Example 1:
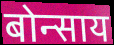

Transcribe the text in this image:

बोन्साय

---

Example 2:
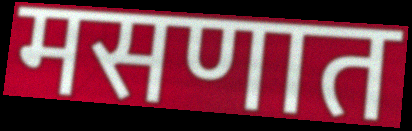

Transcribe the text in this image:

मसणात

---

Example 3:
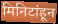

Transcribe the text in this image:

मिनिटांहून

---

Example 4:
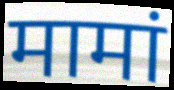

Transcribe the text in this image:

मामां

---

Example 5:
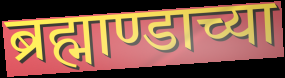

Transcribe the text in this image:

ब्रह्माण्डाच्या